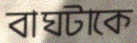
বাঘটাকে